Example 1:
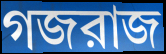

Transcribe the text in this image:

গজরাজ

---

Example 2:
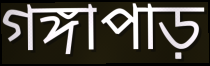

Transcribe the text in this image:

গঙ্গাপাড়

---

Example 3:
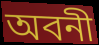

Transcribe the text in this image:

অবনী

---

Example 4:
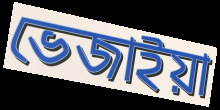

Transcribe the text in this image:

ভেজাইয়া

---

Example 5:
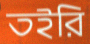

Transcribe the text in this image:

তইরি